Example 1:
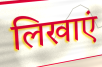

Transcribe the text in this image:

लिखाएं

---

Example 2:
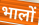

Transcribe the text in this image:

भालों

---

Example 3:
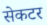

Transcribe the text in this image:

सेकटर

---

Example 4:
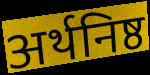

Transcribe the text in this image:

अर्थनिष्ठ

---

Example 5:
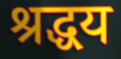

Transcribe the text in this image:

श्रद्धय